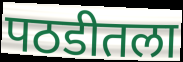
पठडीतला